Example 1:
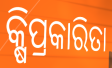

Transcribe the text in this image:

କ୍ଷିପ୍ରକାରିତା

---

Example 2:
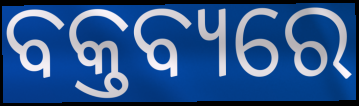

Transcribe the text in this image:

ବକ୍ତବ୍ୟରେ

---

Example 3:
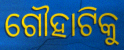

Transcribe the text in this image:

ଗୌହାଟିକୁ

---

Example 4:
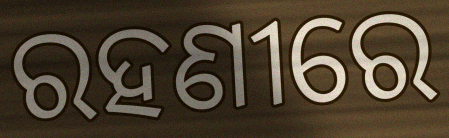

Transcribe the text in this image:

ରହଣୀରେ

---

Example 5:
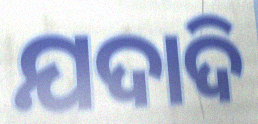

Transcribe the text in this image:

ଯଦାଦି